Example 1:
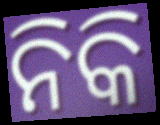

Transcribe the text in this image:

ନିକି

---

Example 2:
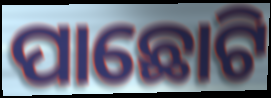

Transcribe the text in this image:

ପାଛୋଟି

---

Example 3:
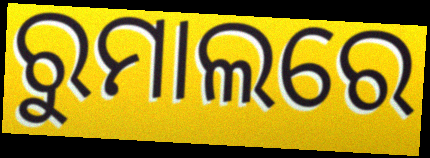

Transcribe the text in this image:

ରୁମାଲରେ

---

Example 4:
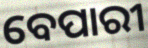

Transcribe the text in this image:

ବେପାରୀ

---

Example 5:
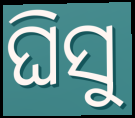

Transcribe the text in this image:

ଘିସୁ